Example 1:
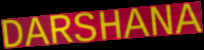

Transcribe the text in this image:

DARSHANA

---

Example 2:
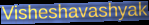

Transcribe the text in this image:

Visheshavashyak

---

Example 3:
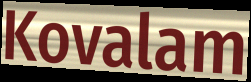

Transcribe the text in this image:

Kovalam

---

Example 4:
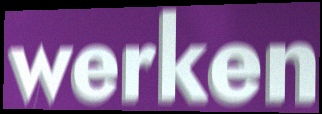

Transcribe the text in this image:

werken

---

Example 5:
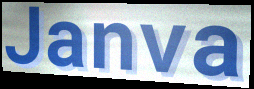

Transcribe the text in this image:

Janva